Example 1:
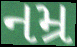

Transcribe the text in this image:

નમ્ર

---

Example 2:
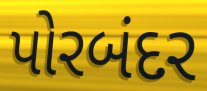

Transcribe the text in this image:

પોરબંદર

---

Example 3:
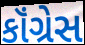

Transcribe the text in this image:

કૉંગ્રેસ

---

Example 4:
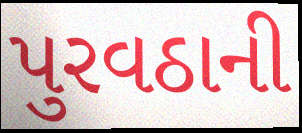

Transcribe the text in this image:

પુરવઠાની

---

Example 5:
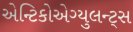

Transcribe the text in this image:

એન્ટિકોએગ્યુલન્ટ્સ